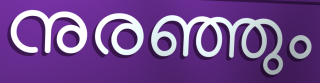
നുരഞ്ഞും